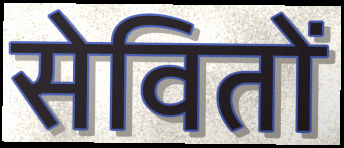
सेवितों